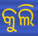
କୁଲି